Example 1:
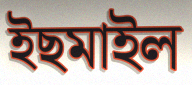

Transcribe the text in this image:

ইছমাইল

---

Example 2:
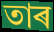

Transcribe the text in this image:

তাৰ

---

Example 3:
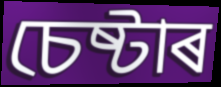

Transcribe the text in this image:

চেষ্টাৰ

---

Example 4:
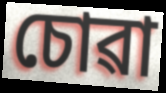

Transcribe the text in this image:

চোৱা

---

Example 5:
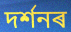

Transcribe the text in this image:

দৰ্শনৰ